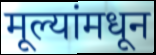
मूल्यांमधून